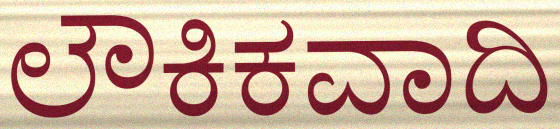
ಲೌಕಿಕವಾದಿ